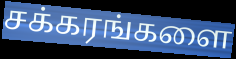
சக்கரங்களை